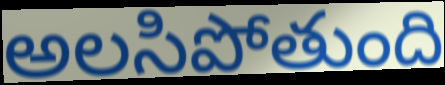
అలసిపోతుంది